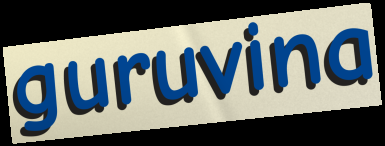
guruvina